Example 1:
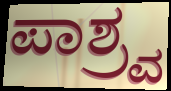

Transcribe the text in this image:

ಪಾಶ್ರ್ವ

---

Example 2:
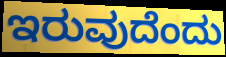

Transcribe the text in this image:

ಇರುವುದೆಂದು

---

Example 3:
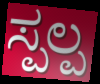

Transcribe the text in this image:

ಸ್ಪಲ್ಪ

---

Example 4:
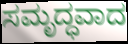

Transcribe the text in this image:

ಸಮೃದ್ಧವಾದ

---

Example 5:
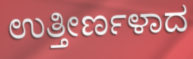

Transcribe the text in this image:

ಉತ್ತೀರ್ಣಳಾದ